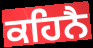
ਕਹਿਨੈ